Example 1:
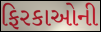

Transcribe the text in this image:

ફિરકાઓની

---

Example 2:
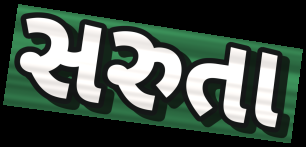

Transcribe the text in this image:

સરુતા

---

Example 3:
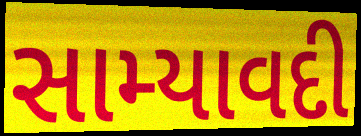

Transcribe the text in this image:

સામ્યાવદી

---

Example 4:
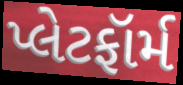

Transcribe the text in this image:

પ્લેટફૉર્મ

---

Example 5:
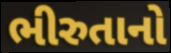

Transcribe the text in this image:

ભીરુતાનો